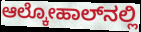
ಆಲ್ಕೋಹಾಲ್‌ನಲ್ಲಿ